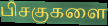
பிசகுகளை